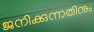
ജനിക്കുന്നതിനും